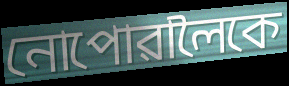
নোপোৱালৈকে